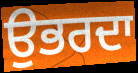
ਉਭਰਦਾ